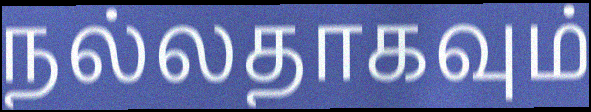
நல்லதாகவும்